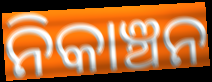
ନିକାଞ୍ଚନ